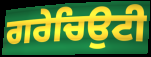
ਗਰੇਚਿਉਟੀ